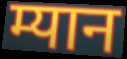
म्यान